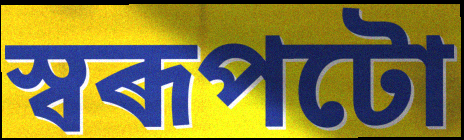
স্বৰূপটো